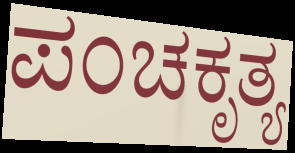
ಪಂಚಕೃತ್ಯ